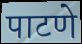
पाटणे